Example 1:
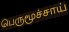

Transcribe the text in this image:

பெருமூச்சாய்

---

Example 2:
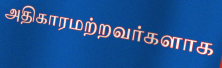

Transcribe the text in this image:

அதிகாரமற்றவர்களாக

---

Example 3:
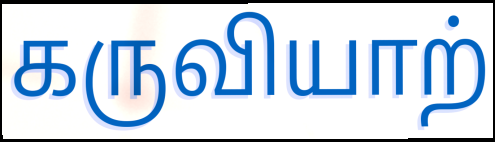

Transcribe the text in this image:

கருவியாற்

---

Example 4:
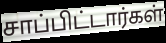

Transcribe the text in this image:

சாப்பிட்டார்கள்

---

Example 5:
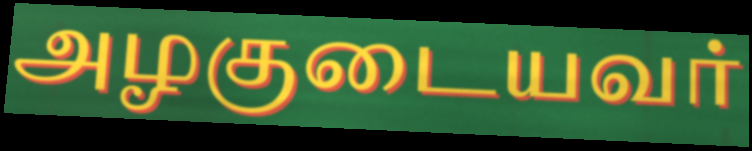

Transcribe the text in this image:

அழகுடையவர்